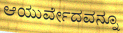
ಆಯುರ್ವೇದವನ್ನೂ